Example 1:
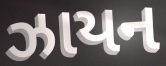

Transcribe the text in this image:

ઝાયન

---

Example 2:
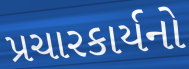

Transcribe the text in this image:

પ્રચારકાર્યનો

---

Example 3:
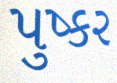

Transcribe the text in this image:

પુષ્કર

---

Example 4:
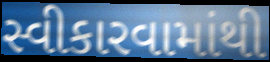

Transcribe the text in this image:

સ્વીકારવામાંથી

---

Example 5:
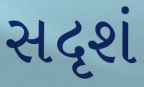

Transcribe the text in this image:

સદૃશં